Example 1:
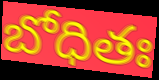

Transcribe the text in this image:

బోధితః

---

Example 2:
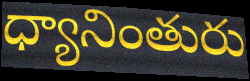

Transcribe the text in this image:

ధ్యానింతురు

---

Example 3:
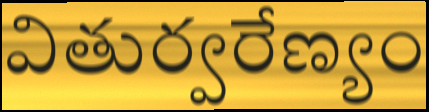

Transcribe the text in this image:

వితుర్వరేణ్యం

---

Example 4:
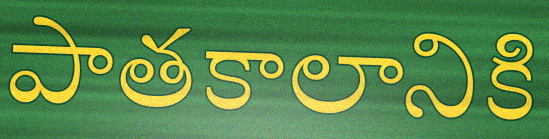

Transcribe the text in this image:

పాతకాలానికి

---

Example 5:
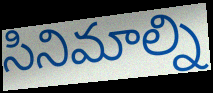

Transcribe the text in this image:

సినిమాల్ని